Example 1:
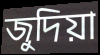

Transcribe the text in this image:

জুদিয়া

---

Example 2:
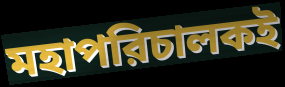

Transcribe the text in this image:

মহাপরিচালকই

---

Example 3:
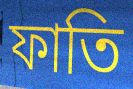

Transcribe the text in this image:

ফাতি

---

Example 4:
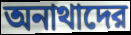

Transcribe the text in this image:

অনাথাদের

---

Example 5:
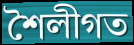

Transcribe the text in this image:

শৈলীগত